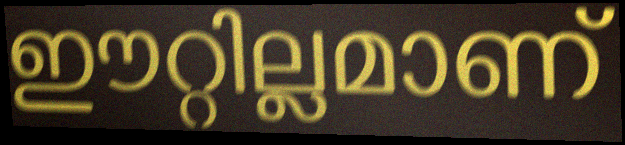
ഈറ്റില്ലമാണ്